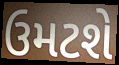
ઉમટશે